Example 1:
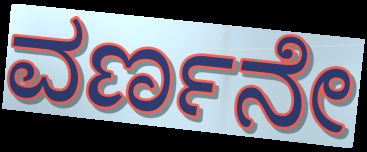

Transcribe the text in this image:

ವರ್ಣನೇ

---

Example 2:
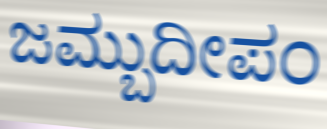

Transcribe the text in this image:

ಜಮ್ಬುದೀಪಂ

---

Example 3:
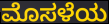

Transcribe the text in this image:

ಮೊಸಳೆಯ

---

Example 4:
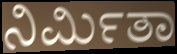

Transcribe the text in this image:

ನಿರ್ಮಿತಾ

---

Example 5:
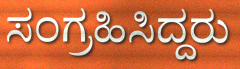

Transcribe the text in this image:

ಸಂಗ್ರಹಿಸಿದ್ದರು